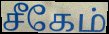
சீகேம்